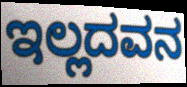
ಇಲ್ಲದವನ